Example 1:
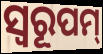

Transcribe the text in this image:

ସ୍ଵରୂପମ୍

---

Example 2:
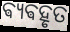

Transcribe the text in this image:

ଵ୍ଯଵହୃତ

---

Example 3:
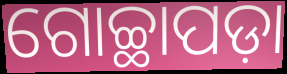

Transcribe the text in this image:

ଗୋଚ୍ଛାପଡ଼ା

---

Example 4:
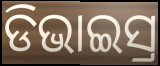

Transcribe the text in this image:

ଡିଭାଇସ୍ର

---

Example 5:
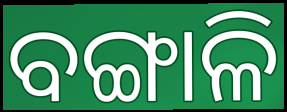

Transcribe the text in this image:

ବଙ୍ଗାଳି